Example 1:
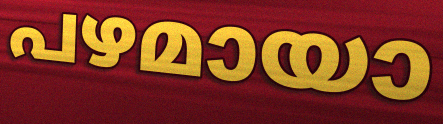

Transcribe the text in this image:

പഴമായാ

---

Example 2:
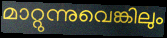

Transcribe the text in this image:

മാറ്റുന്നുവെങ്കിലും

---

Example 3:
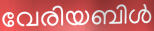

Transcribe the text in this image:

വേരിയബിൾ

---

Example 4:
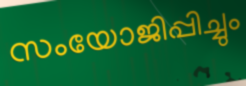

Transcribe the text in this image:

സംയോജിപ്പിച്ചും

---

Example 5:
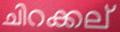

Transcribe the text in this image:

ചിറക്കല്